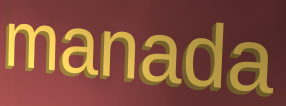
manada